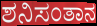
ಶನಿಸಂತಾನ